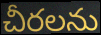
చీరలను